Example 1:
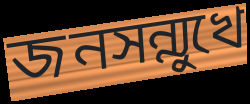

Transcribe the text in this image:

জনসন্মুখে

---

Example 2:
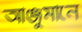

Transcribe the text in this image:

আঞ্জুমানে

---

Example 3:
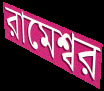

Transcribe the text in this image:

রামেশ্বর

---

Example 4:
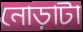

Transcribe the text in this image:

নোড়াটা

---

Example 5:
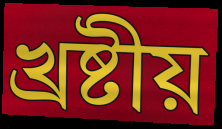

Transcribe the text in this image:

খ্রষ্টীয়